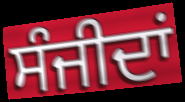
ਸੰਜੀਦਾਂ